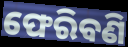
ଫେରିବଣି